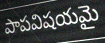
పాపవిషయమై